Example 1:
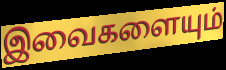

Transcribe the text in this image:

இவைகளையும்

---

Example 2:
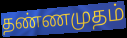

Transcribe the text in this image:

தண்ணமுதம்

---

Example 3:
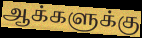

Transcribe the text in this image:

ஆக்களுக்கு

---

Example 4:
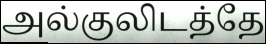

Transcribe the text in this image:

அல்குலிடத்தே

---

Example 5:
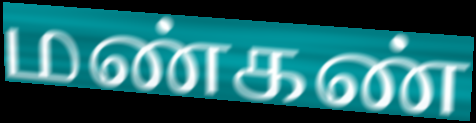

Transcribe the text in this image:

மண்கண்